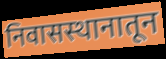
निवासस्थानातून